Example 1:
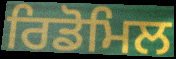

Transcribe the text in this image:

ਰਿਡੋਮਿਲ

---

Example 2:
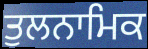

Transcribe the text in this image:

ਤੁਲਨਾਮਿਕ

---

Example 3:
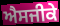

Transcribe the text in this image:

ਐਸਜੀਕੇ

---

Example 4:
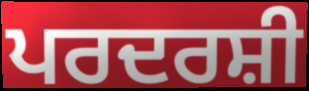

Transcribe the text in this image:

ਪਰਦਰਸ਼ੀ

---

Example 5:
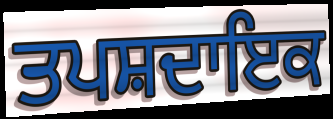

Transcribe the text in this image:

ਤਪਸ਼ਦਾਇਕ